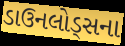
ડાઉનલોડ્સના